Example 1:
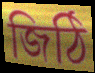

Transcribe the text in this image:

জিঠি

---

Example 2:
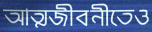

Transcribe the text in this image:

আত্মজীবনীতেও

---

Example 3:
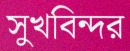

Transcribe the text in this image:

সুখবিন্দর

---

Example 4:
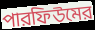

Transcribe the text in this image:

পারফিউমের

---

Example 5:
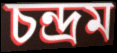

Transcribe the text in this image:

চন্দ্রম